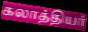
கலாத்தியர்